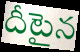
దీటైన